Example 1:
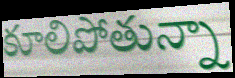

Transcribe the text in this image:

కూలిపోతున్నా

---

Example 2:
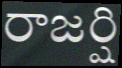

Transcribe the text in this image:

రాజర్షి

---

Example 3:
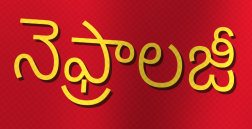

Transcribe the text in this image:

నెఫ్రాలజీ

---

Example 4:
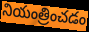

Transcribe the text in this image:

నియంత్రించడం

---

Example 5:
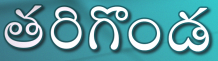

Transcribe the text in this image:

తరిగొండ